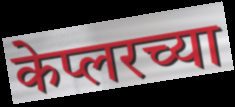
केप्लरच्या